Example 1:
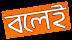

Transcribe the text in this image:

বলেই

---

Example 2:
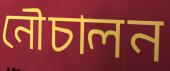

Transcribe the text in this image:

নৌচালন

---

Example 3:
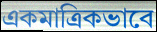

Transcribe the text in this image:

একমাত্রিকভাবে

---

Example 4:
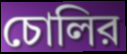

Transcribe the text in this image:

চোলির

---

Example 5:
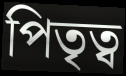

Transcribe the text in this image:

পিতৃত্ব